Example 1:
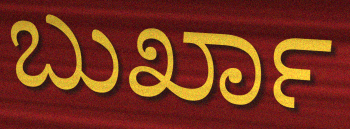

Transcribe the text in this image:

ಬುರ್ಖಾ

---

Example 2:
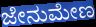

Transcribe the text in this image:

ಜೇನುಮೇಣ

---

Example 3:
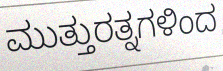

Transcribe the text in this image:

ಮುತ್ತುರತ್ನಗಳಿಂದ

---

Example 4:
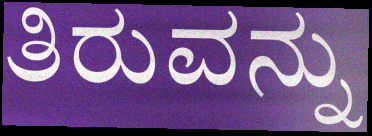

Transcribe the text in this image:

ತಿರುವನ್ನು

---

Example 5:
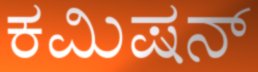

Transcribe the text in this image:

ಕಮಿಷನ್